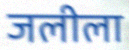
जलीला